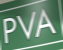
PVA